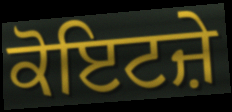
ਕੋਇਟਜ਼ੇ